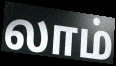
லாம்